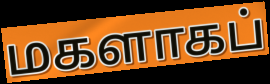
மகளாகப்